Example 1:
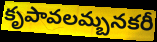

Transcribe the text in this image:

కృపావలమ్బనకరీ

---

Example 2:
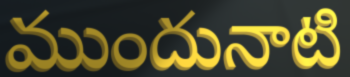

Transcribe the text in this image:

ముందునాటి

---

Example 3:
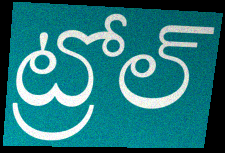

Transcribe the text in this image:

ట్రోల్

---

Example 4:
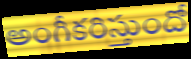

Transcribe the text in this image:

అంగీకరిస్తుందో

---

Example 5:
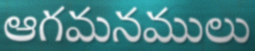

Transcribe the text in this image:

ఆగమనములు